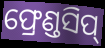
ଫ୍ରେଣ୍ଡସିପ୍